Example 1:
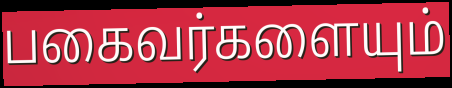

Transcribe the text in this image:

பகைவர்களையும்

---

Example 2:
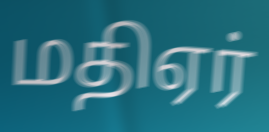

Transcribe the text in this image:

மதிஏர்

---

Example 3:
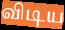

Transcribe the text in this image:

விடிய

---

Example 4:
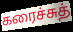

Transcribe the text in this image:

கரைச்சுத்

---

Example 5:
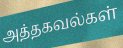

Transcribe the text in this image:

அத்தகவல்கள்